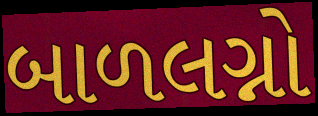
બાળલગ્નો